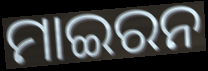
ମାଇରନ